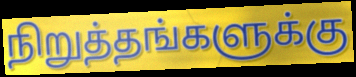
நிறுத்தங்களுக்கு